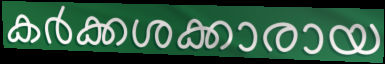
കർക്കശക്കാരായ